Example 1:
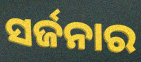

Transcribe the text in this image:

ସର୍ଜନାର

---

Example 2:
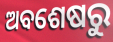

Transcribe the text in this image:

ଅବଶେଷରୁ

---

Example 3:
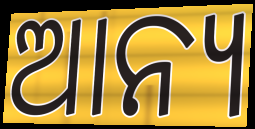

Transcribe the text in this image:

ଆନ୍ୟ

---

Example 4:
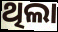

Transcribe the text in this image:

ଥିଲା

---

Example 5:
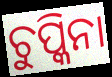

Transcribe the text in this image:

ଚୁପ୍କିନା